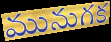
మునుగక